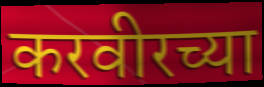
करवीरच्या